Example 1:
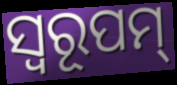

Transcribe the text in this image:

ସ୍ୱରୂପମ୍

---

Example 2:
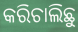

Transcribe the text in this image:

କରିଚାଲିଛୁ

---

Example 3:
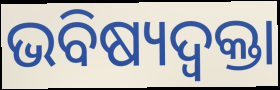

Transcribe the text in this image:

ଭବିଷ୍ୟଦ୍ବକ୍ତା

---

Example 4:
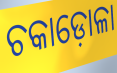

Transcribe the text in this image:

ଚକାଡ଼ୋଳା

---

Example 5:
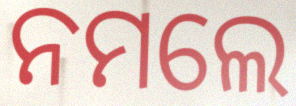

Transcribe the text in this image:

ନମଲେ